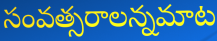
సంవత్సరాలన్నమాట